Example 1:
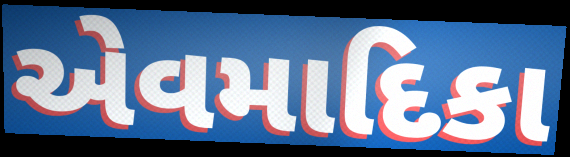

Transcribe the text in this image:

એવમાદિકા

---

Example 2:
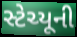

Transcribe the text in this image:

સ્ટેચ્યૂની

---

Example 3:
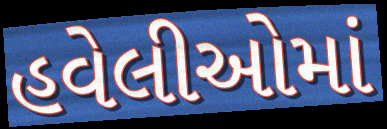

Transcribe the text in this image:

હવેલીઓમાં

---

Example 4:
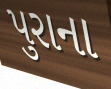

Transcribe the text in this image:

પુરાના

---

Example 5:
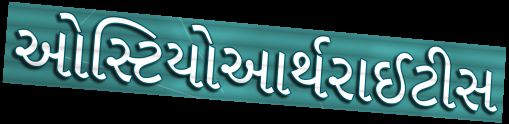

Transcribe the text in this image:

ઓસ્ટિયોઆર્થરાઈટીસ